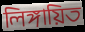
লিঙ্গায়িত